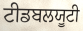
ਟੀਡਬਲਯੂਟੀ